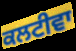
ਕਲਟੀਵਾ